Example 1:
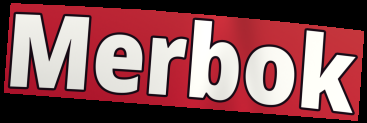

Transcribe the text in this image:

Merbok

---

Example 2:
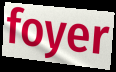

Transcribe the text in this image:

foyer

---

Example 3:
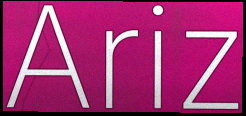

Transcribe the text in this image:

Ariz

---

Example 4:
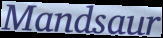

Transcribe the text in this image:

Mandsaur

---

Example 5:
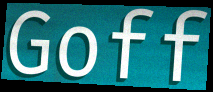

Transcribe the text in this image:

Goff